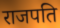
राजपति